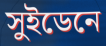
সুইডেনে